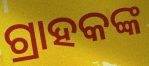
ଗ୍ରାହକଙ୍କ